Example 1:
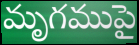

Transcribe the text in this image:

మృగముపై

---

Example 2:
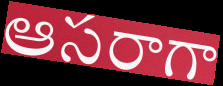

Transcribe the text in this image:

ఆసరాగా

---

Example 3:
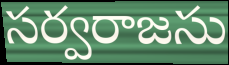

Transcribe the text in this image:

సర్వరాజసు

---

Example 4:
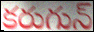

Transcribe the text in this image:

కరుగున్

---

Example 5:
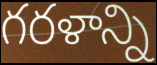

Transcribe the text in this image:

గరళాన్ని